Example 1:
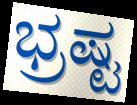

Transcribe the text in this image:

ಭ್ರಷ್ಟ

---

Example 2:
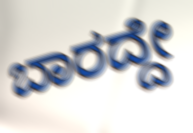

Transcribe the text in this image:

ಬಾರದ್ದೇ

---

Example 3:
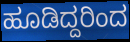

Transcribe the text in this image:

ಹೂಡಿದ್ದರಿಂದ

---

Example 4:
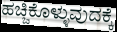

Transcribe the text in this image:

ಹಚ್ಚಿಕೊಳ್ಳುವುದಕ್ಕೆ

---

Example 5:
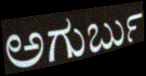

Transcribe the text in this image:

ಅಗುರ್ಬು